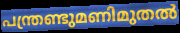
പന്ത്രണ്ടുമണിമുതൽ